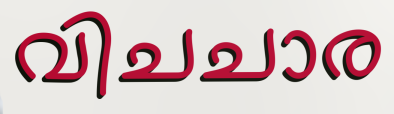
വിചചാര